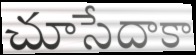
చూసేదాకా